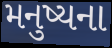
મનુષ્યના